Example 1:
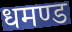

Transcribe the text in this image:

धमण्ड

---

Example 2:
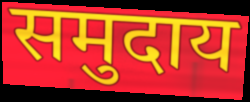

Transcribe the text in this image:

समुदाय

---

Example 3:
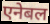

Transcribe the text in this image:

एनेबल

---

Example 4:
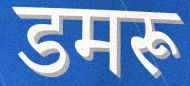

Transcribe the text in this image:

डमरू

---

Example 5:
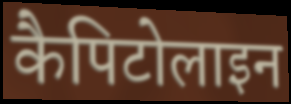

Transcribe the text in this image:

कैपिटोलाइन